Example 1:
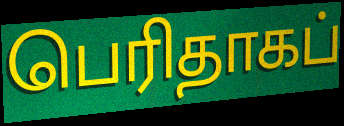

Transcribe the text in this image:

பெரிதாகப்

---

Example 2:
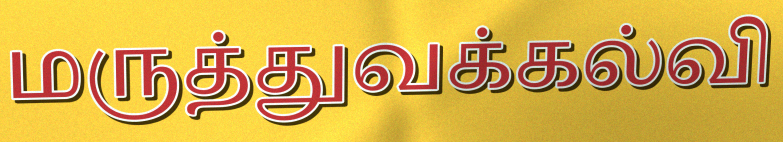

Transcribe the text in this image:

மருத்துவக்கல்வி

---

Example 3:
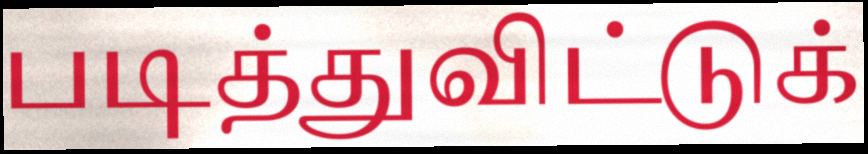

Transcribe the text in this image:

படித்துவிட்டுக்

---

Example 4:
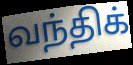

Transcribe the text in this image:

வந்திக்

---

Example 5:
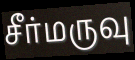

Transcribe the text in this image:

சீர்மருவு